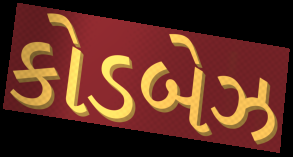
કોડબેઝ